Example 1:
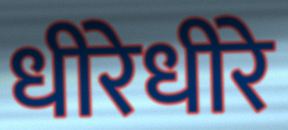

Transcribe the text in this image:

धीरेधीरे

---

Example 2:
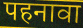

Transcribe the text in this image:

पहनावा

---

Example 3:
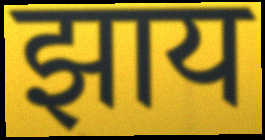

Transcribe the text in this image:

झाय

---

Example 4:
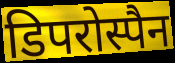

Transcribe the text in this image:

डिपरोस्पैन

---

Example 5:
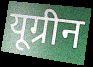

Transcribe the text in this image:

यूग्रीन